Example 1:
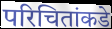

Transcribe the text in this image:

परिचितांकडे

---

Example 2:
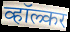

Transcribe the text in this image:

व्हॉल्कर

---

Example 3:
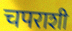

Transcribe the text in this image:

चपराशी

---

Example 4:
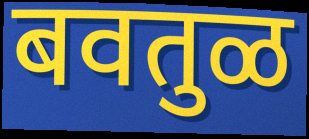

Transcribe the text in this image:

बवतुळ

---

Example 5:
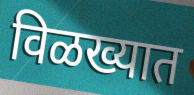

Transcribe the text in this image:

विळख्यात